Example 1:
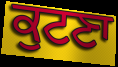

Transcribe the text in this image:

ਕੁਟਣਾ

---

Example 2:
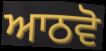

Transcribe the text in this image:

ਆਠਵੋ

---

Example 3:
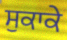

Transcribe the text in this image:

ਸੁਕਾਕੇ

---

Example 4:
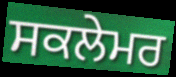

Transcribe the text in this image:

ਸਕਲੇਮਰ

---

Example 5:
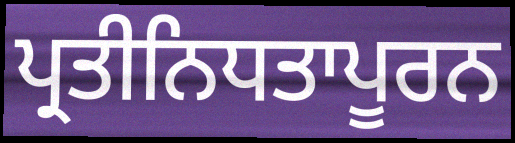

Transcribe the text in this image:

ਪ੍ਰਤੀਨਿਧਤਾਪੂਰਨ